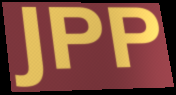
JPP